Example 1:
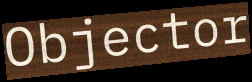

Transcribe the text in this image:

Objector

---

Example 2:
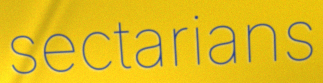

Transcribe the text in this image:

sectarians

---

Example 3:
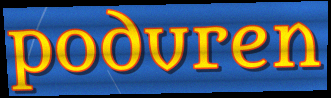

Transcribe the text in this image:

poduren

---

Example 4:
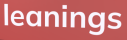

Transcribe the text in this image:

leanings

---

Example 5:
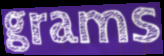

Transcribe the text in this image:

grams